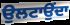
ਉਲਟਾਉਂਦਾ